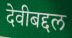
देवीबद्दल